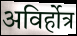
अविर्होत्र